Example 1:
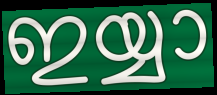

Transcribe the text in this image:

ഇയ്യാ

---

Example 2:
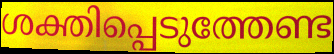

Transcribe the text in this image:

ശക്തിപ്പെടുത്തേണ്ട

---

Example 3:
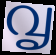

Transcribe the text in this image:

വൃ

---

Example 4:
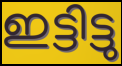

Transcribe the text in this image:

ഇട്ടിട്ടു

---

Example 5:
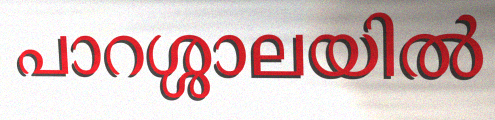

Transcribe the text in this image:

പാറശ്ശാലയിൽ